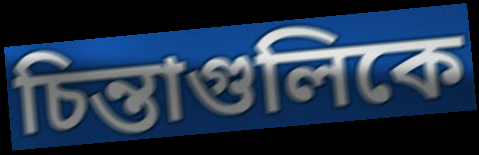
চিন্তাগুলিকে